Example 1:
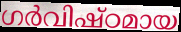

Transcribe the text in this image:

ഗർവിഷ്ഠമായ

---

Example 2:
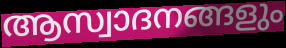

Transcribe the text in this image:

ആസ്വാദനങ്ങളും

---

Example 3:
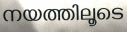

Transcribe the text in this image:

നയത്തിലൂടെ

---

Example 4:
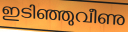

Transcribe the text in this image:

ഇടിഞ്ഞുവീണു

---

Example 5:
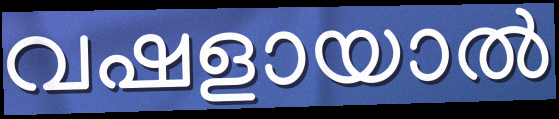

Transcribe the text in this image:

വഷളായാൽ